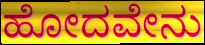
ಹೋದವೇನು